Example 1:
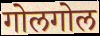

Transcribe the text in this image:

गोलगोल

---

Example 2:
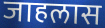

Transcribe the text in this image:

जाहलास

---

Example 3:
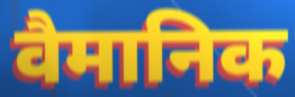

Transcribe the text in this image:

वैमानिक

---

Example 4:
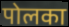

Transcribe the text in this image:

पोलका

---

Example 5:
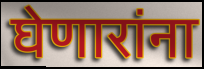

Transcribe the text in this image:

घेणारांना